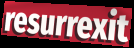
resurrexit